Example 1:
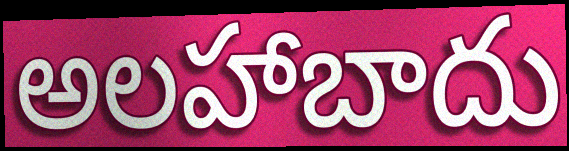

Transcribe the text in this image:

అలహాబాదు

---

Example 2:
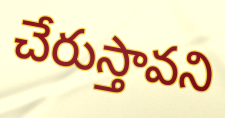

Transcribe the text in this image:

చేరుస్తావని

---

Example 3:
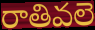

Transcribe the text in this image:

రాతివలె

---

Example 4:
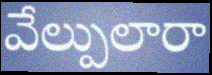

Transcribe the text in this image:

వేల్పులారా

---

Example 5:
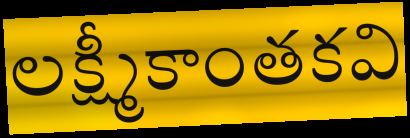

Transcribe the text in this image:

లక్ష్మీకాంతకవి